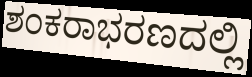
ಶಂಕರಾಭರಣದಲ್ಲಿ